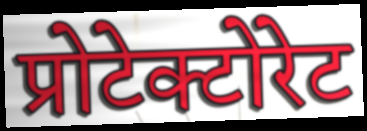
प्रोटेक्टोरेट